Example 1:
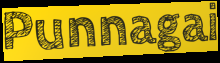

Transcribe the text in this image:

Punnagai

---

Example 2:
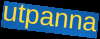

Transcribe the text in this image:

utpanna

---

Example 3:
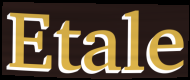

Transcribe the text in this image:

Etale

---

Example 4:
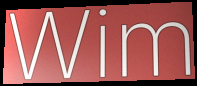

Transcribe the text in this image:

Wim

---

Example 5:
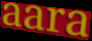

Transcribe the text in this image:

aara